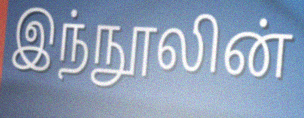
இந்நூலின்